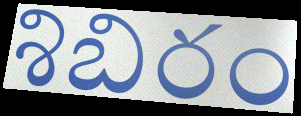
శిబిరం